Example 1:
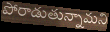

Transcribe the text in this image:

పోరాడుతున్నామని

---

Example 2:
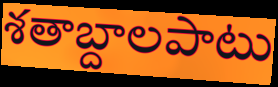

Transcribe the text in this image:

శతాబ్దాలపాటు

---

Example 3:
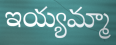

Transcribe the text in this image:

ఇయ్యమ్మా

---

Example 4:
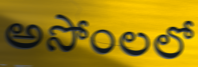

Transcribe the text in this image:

అసోంలలో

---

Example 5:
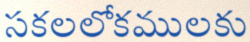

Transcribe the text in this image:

సకలలోకములకు